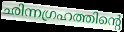
ഛിന്നഗ്രഹത്തിന്റെ